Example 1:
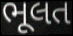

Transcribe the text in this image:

ભૂલત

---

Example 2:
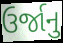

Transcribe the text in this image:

ઉર્જાનુ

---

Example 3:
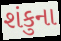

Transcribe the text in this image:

શંકુના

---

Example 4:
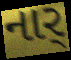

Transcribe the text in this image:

નાર્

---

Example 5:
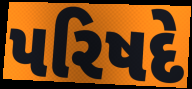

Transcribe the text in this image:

પરિષદે